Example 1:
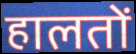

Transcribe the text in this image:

हालतों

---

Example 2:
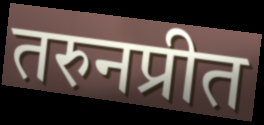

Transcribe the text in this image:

तरुनप्रीत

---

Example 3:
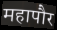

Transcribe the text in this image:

महापौर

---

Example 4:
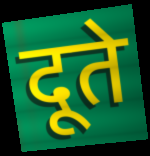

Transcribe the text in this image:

दूते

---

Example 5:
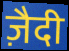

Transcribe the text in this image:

ज़ैदी